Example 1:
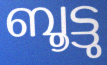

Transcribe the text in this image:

ബൂട്ടു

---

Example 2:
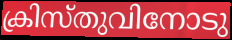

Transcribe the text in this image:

ക്രിസ്തുവിനോടു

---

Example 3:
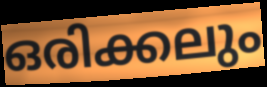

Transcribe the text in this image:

ഒരിക്കലും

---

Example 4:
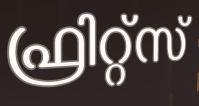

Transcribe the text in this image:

ഫ്രിറ്റ്സ്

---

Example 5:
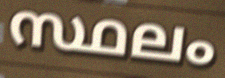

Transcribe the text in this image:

സ്ഥലം